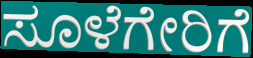
ಸೂಳೆಗೇರಿಗೆ